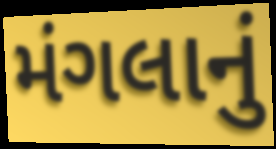
મંગલાનું